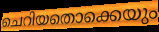
ചെറിയതൊക്കെയും